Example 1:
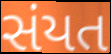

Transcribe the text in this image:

સંયત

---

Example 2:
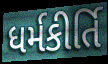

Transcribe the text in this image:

ધર્મકીર્તિ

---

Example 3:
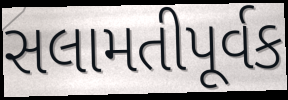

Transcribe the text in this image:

સલામતીપૂર્વક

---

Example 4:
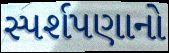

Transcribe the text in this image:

સ્પર્શપણાનો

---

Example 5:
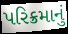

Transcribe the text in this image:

પરિક્રમાનું